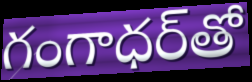
గంగాధర్‌తో